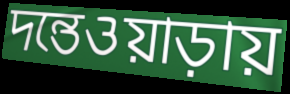
দন্তেওয়াড়ায়